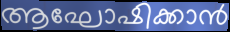
ആഘോഷിക്കാൻ